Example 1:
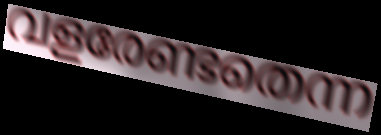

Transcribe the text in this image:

വളരേണ്ടതെന്ന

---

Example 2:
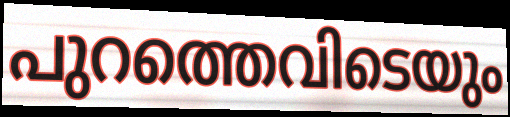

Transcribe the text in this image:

പുറത്തെവിടെയും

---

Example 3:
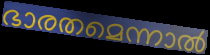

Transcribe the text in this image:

ഭാരതമെന്നാൽ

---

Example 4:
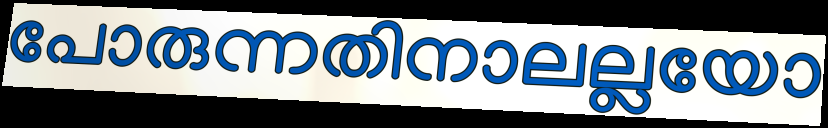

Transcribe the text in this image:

പോരുന്നതിനാലല്ലയോ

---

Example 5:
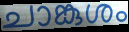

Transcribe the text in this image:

ചാങ്കുശം